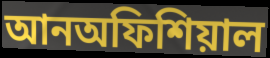
আনঅফিশিয়াল